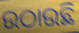
ଉଠାଉଛି